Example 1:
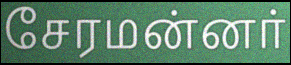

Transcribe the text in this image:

சேரமன்னர்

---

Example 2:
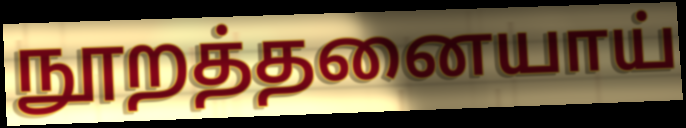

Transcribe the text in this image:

நூறத்தனையாய்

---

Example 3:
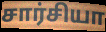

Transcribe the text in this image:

சார்சியா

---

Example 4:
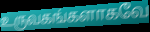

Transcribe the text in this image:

உருவகங்களாகவே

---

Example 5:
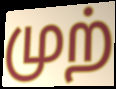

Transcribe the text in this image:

முற்